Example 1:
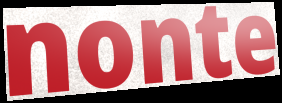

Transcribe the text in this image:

nonte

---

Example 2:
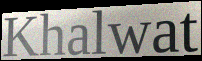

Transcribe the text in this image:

Khalwat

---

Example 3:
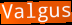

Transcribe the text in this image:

Valgus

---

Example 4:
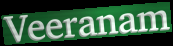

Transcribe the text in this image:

Veeranam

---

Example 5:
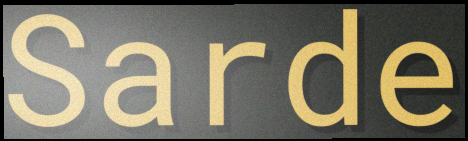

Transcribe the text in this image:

Sarde